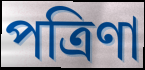
পত্রিণা